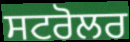
ਸਟਰੋਲਰ